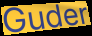
Guder